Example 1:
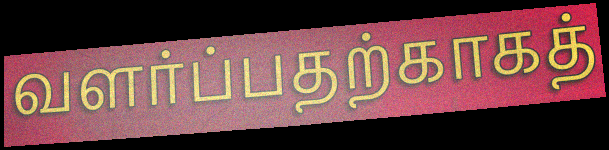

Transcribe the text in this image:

வளர்ப்பதற்காகத்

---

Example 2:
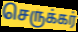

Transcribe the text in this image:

செருக்கர்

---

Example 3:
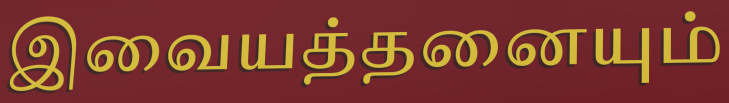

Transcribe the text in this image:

இவையத்தனையும்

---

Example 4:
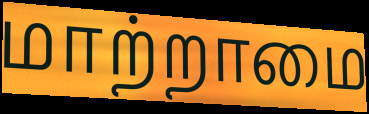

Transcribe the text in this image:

மாற்றாமை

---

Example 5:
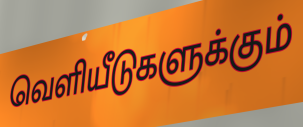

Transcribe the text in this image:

வெளியீடுகளுக்கும்